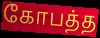
கோபத்த